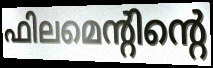
ഫിലമെന്റിന്റെ